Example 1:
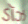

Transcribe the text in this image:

ડૉઝ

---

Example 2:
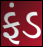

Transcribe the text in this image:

ફંડ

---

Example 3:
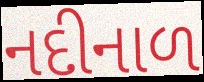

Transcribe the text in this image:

નદીનાળ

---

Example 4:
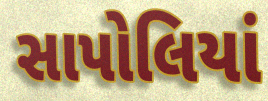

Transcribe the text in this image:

સાપોલિયાં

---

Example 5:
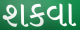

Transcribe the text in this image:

શકવા